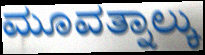
ಮೂವತ್ನಾಲ್ಕು